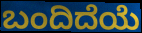
ಬಂದಿದೆಯೆ